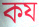
কয